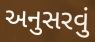
અનુસરવું